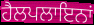
ਹੈਲਪਲਾਇਨਾਂ